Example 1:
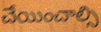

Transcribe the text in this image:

చేయించాల్సి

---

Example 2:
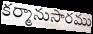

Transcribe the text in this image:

కర్మానుసారము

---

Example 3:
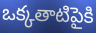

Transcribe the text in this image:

ఒక్కతాటిపైకి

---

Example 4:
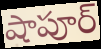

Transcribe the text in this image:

షాపూర్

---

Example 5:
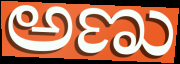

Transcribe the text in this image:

అణు